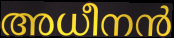
അധീനൻ